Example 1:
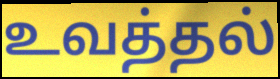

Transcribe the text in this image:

உவத்தல்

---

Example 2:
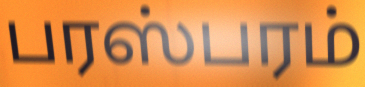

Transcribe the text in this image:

பரஸ்பரம்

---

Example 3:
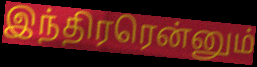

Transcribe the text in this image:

இந்திரரென்னும்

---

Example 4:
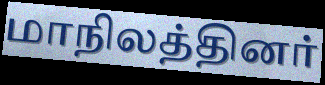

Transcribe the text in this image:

மாநிலத்தினர்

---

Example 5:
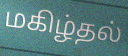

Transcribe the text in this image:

மகிழ்தல்